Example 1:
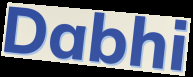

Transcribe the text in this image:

Dabhi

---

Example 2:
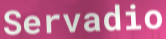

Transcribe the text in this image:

Servadio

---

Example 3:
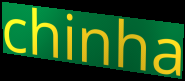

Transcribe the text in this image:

chinha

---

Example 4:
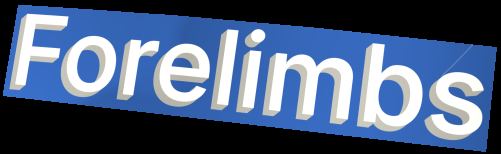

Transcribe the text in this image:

Forelimbs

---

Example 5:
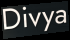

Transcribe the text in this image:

Divya